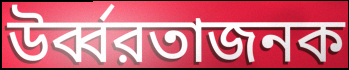
উর্ব্বরতাজনক